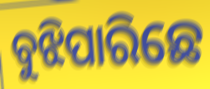
ବୁଝିପାରିଛେ